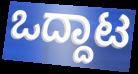
ಒದ್ದಾಟ